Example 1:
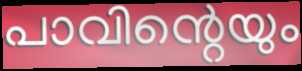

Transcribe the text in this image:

പാവിന്റെയും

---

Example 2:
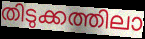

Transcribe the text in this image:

തിടുക്കത്തിലാ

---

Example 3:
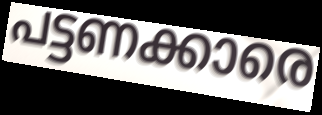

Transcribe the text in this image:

പട്ടണക്കാരെ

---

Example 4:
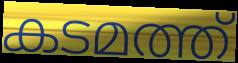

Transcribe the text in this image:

കടമത്ത്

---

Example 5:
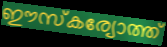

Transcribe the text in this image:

ഈസ്കര്യോത്ത്